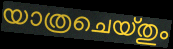
യാത്രചെയ്തും